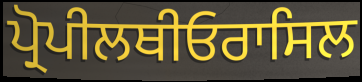
ਪ੍ਰੋਪੀਲਥੀਓਰਾਸਿਲ